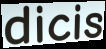
dicis